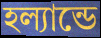
হল্যান্ডে